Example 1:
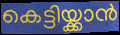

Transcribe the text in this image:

കെട്ടിയ്ക്കാൻ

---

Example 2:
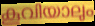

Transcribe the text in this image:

കൂവിയാലും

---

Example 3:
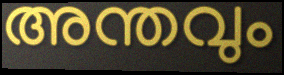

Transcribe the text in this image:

അന്തവും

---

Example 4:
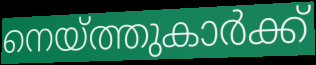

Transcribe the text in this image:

നെയ്ത്തുകാർക്ക്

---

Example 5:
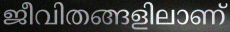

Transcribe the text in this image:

ജീവിതങ്ങളിലാണ്